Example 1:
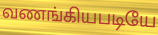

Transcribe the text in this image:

வணங்கியபடியே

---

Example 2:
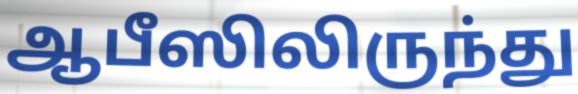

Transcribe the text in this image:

ஆபீஸிலிருந்து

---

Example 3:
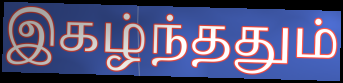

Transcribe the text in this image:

இகழ்ந்ததும்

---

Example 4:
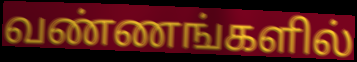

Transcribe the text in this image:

வண்ணங்களில்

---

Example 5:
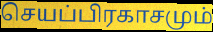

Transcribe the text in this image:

செயப்பிரகாசமும்